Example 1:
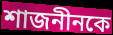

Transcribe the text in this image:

শাজনীনকে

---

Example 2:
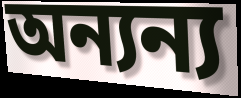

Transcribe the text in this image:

অন্যন্য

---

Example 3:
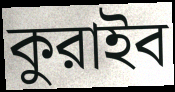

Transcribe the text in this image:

কুরাইব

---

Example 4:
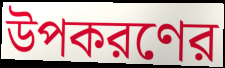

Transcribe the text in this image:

উপকরণের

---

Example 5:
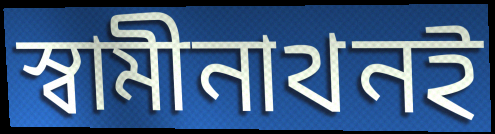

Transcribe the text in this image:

স্বামীনাথনই